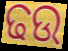
ଢଉ